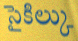
సైకిల్కు